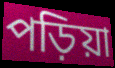
পড়িয়া